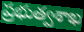
ప్రభుత్వశాఖ